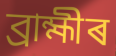
ব্ৰাহ্মীৰ